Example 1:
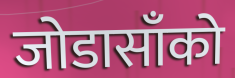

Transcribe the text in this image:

जोडासाँको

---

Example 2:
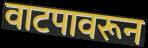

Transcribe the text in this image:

वाटपावरून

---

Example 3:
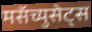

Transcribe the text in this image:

मसॅच्युसेट्स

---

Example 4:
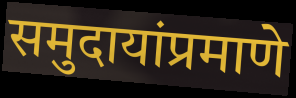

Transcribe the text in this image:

समुदायांप्रमाणे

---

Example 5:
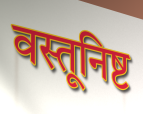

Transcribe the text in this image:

वस्तूनिष्ट